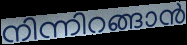
നിന്നിറങ്ങാൻ